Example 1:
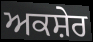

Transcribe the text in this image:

ਅਕਸ਼ੇਰ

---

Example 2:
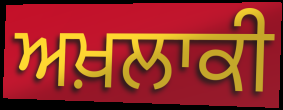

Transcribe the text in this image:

ਅਖ਼ਲਾਕੀ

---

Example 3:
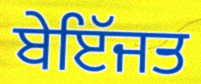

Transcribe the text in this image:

ਬੇਇੱਜਤ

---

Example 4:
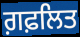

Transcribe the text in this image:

ਗ਼ਫ਼ਲਿਤ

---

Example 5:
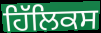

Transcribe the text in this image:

ਹਿੱਲਿਕਸ